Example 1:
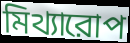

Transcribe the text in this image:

মিথ্যারোপ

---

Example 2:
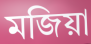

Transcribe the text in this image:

মজিয়া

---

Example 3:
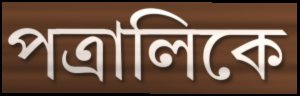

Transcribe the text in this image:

পত্রালিকে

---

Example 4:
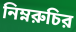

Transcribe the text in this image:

নিম্নরুচির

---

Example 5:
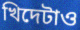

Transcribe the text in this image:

খিদেটাও